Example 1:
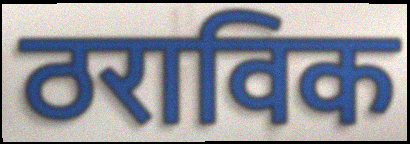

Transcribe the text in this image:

ठराविक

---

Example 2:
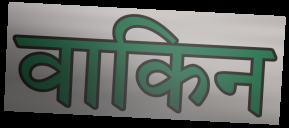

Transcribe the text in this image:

वाकिन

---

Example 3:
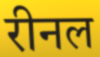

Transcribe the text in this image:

रीनल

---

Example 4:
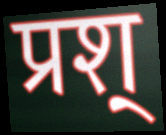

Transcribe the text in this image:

प्रश्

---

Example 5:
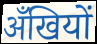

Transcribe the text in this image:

अँखियों